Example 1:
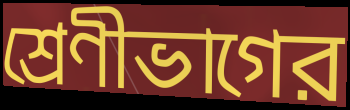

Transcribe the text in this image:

শ্রেণীভাগের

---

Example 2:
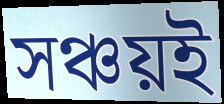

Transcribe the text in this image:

সঞ্চয়ই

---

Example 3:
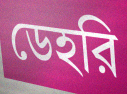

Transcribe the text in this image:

ডেহরি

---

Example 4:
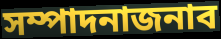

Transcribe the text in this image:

সম্পাদনাজনাব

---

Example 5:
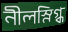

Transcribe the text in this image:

নীলস্নিগ্ধ